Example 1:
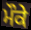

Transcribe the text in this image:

ਮੌਕੇ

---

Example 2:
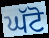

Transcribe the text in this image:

ਘੱਟੋ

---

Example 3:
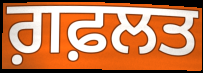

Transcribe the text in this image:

ਗ਼ਫ਼ਲਤ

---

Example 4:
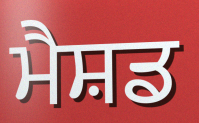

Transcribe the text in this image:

ਮੈਸ਼ਡ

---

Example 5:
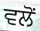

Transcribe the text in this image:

ਵਲੋਂ